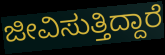
ಜೀವಿಸುತ್ತಿದ್ದಾರೆ